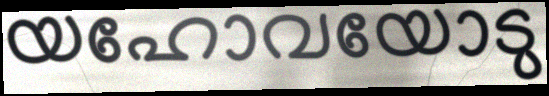
യഹോവയോടു